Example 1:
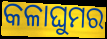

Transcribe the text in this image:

କଳାଘୁମର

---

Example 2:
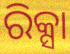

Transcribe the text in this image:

ରିକ୍ସା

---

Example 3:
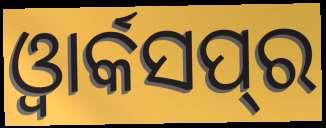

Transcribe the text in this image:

ଓ୍ୱାର୍କସପ୍‌ର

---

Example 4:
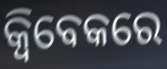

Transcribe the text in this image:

କ୍ୱିବେକରେ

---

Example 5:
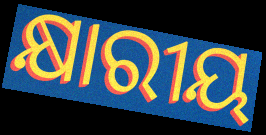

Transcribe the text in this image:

କ୍ଷାରୀୟ